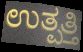
ಉತ್ಪತ್ತಿ